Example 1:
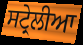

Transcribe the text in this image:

ਸਟ੍ਰੇਲੀਆ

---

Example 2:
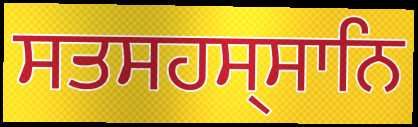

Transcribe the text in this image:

ਸਤਸਹਸ੍ਸਾਨਿ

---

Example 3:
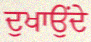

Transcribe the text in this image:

ਦੁਖਾਉਂਦੇ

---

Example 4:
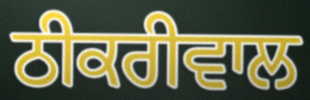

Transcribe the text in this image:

ਠੀਕਰੀਵਾਲ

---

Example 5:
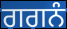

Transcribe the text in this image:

ਗਗਨੰ